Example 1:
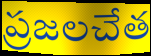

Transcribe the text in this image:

ప్రజలచేత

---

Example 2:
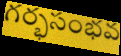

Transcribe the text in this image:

గర్భసంభవ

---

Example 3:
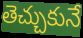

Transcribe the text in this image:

తెచ్చుకునే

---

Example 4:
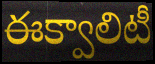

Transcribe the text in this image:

ఈక్వాలిటీ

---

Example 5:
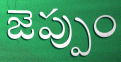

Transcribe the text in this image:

జెప్పుం